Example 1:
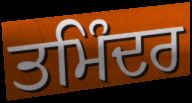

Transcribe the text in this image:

ਤਮਿੰਦਰ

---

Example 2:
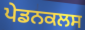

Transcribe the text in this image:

ਪੇਡਨਕਲਸ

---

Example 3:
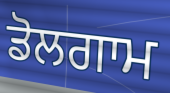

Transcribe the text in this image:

ਡੋਲਗਾਮ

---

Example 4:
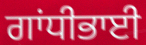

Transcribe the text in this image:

ਗਾਂਧੀਭਾਈ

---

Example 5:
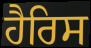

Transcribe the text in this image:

ਹੈਰਿਸ